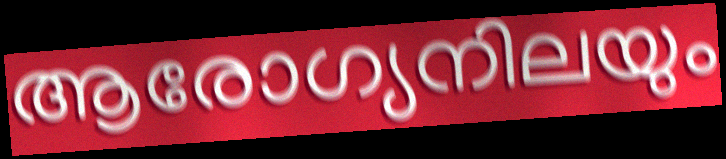
ആരോഗ്യനിലയും